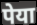
पेया